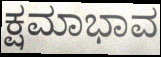
ಕ್ಷಮಾಭಾವ